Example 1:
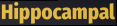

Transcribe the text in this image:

Hippocampal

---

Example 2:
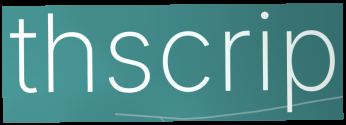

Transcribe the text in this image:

thscrip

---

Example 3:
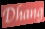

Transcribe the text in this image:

Dhang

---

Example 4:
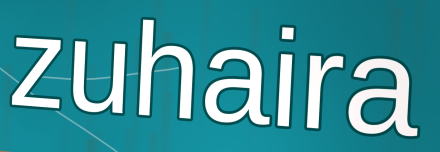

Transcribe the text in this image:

zuhaira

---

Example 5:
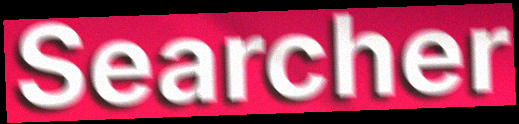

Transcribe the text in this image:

Searcher